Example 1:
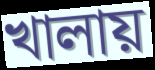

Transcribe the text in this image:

খালায়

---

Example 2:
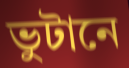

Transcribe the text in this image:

ভুটানে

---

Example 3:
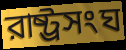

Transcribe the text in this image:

রাষ্ট্রসংঘ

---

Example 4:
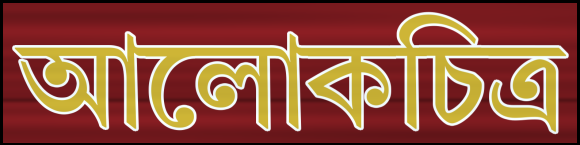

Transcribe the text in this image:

আলোকচিত্র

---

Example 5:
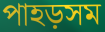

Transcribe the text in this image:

পাহড়সম